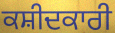
ਕਸ਼ੀਦਕਾਰੀ